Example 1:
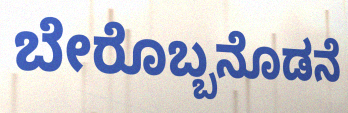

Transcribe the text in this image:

ಬೇರೊಬ್ಬನೊಡನೆ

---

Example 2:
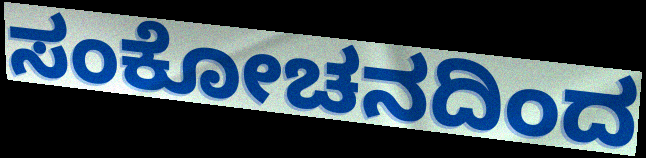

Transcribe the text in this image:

ಸಂಕೋಚನದಿಂದ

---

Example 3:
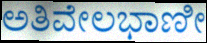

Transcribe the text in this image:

ಅತಿವೇಲಭಾಣೀ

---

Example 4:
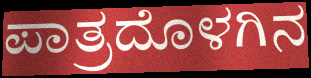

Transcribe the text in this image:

ಪಾತ್ರದೊಳಗಿನ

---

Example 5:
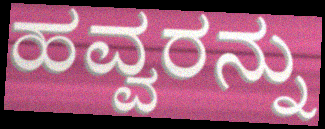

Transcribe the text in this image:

ಹವ್ವರನ್ನು